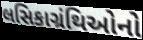
લસિકાગ્રંથિઓનો